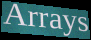
Arrays